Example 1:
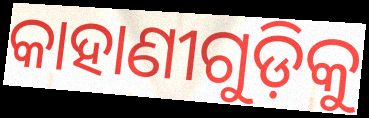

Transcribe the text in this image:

କାହାଣୀଗୁଡ଼ିକୁ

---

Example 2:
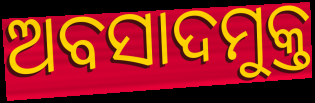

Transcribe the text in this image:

ଅବସାଦମୁକ୍ତ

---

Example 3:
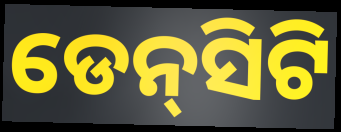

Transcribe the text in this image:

ଡେନ୍‌ସିଟି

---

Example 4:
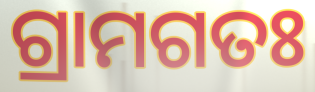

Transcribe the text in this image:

ଗ୍ରାମଗତଃ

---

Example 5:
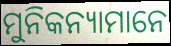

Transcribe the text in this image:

ମୁନିକନ୍ୟାମାନେ